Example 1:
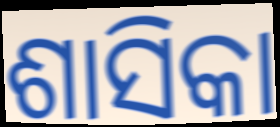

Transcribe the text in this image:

ଶାସିକା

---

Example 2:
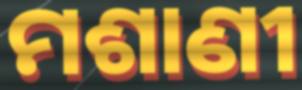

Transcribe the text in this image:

ମଶାଣୀ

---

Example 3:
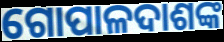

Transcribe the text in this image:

ଗୋପାଳଦାଶଙ୍କ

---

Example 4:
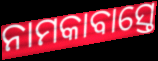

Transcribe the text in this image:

ନାମକାବାସ୍ତେ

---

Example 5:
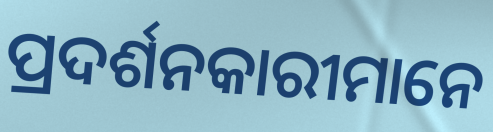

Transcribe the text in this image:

ପ୍ରଦର୍ଶନକାରୀମାନେ